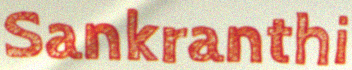
Sankranthi